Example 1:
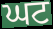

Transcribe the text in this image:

ਘਟ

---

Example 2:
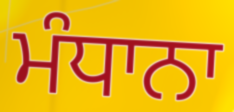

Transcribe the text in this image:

ਮੰਧਾਨਾ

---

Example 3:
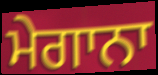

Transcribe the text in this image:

ਮੇਗਾਨਾ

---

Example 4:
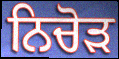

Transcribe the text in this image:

ਨਿਚੋੜ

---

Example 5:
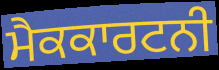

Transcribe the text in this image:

ਮੈਕਕਾਰਟਨੀ